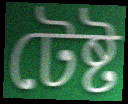
টেষ্ট